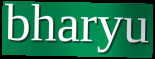
bharyu